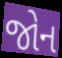
જોન